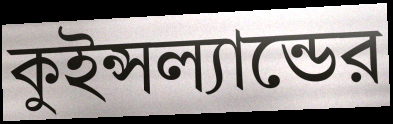
কুইন্সল্যান্ডের